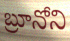
బ్రూనోని